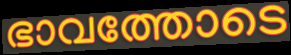
ഭാവത്തോടെ